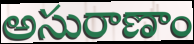
అసురాణాం